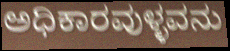
ಅಧಿಕಾರವುಳ್ಳವನು